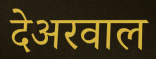
देअरवाल